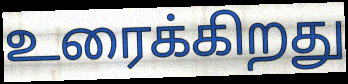
உரைக்கிறது